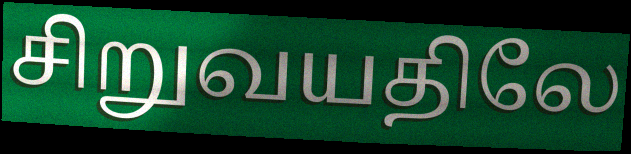
சிறுவயதிலே